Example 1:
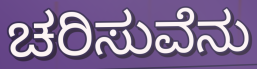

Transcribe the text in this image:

ಚರಿಸುವೆನು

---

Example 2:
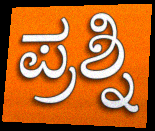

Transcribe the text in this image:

ಪ್ರಶ್ನಿ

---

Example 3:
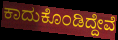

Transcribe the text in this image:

ಕಾದುಕೊಂಡಿದ್ದೇವೆ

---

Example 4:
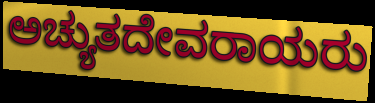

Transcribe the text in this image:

ಅಚ್ಯುತದೇವರಾಯರು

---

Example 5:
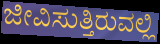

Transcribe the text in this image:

ಜೀವಿಸುತ್ತಿರುವಲ್ಲಿ